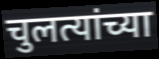
चुलत्यांच्या